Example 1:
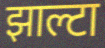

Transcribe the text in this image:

झाल्टा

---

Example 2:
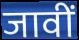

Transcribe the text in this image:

जावीं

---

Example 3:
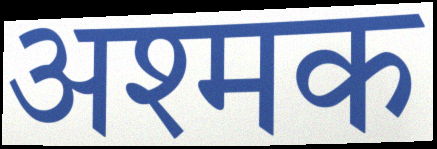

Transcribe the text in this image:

अश्मक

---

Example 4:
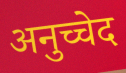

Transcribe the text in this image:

अनुच्चेद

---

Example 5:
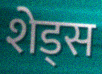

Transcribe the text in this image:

शेड्स